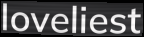
loveliest